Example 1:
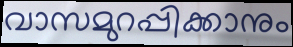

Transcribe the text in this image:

വാസമുറപ്പിക്കാനും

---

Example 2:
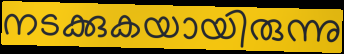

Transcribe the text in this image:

നടക്കുകയായിരുന്നു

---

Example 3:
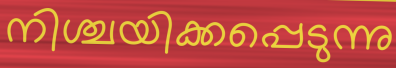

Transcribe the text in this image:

നിശ്ചയിക്കപ്പെടുന്നു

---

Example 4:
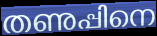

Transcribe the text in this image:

തണുപ്പിനെ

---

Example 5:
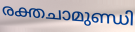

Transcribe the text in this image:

രക്തചാമുണ്ഡി